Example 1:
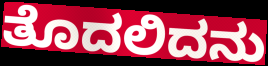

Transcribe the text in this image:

ತೊದಲಿದನು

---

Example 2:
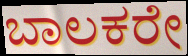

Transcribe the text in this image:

ಬಾಲಕರೇ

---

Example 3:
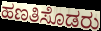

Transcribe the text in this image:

ಹಣತಿಸೊಡರು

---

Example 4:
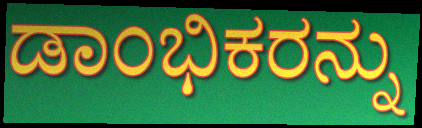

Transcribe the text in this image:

ಡಾಂಭಿಕರನ್ನು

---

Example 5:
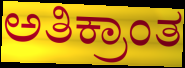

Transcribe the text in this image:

ಅತಿಕ್ರಾಂತ